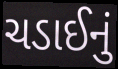
ચડાઈનું